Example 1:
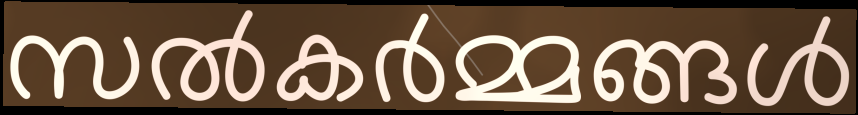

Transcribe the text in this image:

സൽകർമ്മങ്ങൾ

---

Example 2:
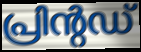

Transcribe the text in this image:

പ്രിന്റഡ്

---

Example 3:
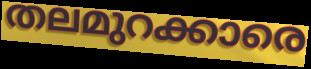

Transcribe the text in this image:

തലമുറക്കാരെ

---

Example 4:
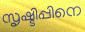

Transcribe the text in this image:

സൃഷ്ടിപ്പിനെ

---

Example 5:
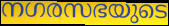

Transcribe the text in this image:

നഗരസഭയുടെ